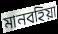
মানবহিয়া